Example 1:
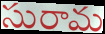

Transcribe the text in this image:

సురామ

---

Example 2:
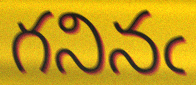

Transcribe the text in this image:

గనినఁ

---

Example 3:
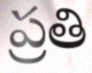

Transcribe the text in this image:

ప్రతి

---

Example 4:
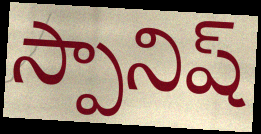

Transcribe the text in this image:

స్పానిష్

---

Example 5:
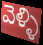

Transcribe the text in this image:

వెళ్ళి